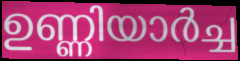
ഉണ്ണിയാർച്ച